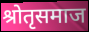
श्रोतृसमाज